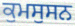
ਕੁਮਸੁਸਨ